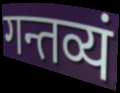
गन्तव्यं